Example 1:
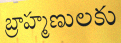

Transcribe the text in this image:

బ్రాహ్మణులకు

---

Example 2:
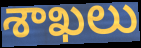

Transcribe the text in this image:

శాఖలు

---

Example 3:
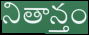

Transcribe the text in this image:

నితాన్తం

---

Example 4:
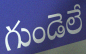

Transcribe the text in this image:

గుండెలే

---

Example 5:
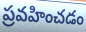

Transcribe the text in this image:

ప్రవహించడం